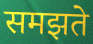
समझते